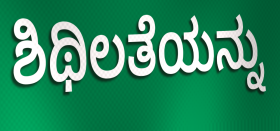
ಶಿಥಿಲತೆಯನ್ನು